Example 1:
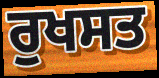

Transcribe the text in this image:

ਰੁਖਸਤ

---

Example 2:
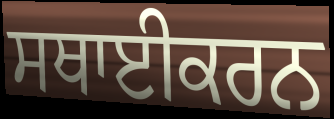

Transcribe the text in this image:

ਸਥਾਈਕਰਨ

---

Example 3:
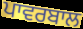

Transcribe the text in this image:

ਪਾਵਰਬਾਲ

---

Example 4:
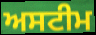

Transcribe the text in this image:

ਅਸਟੀਮ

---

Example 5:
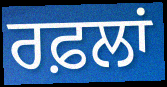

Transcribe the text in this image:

ਰਫ਼ਲਾਂ